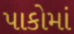
પાકોમાં